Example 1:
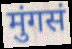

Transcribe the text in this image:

मुंगसं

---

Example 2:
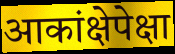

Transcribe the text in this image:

आकांक्षेपेक्षा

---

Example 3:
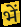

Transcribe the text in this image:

भें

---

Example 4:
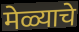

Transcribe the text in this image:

मेळ्याचे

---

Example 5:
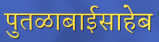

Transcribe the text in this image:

पुतळाबाईसाहेब